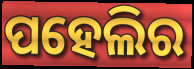
ପହେଲିର